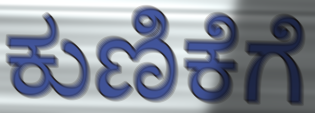
ಕುಣಿಕೆಗೆ